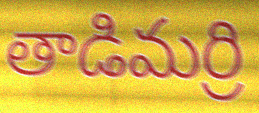
తాడిమర్రి